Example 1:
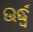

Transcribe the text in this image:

ଊର୍ଦ୍ଧ୍ୱ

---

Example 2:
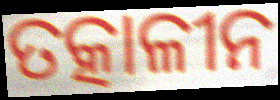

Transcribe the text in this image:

ତତ୍କାଳୀନ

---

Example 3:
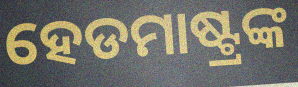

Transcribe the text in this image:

ହେଡମାଷ୍ଟ୍ରଙ୍କ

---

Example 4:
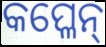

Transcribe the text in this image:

କପ୍ଳେନ୍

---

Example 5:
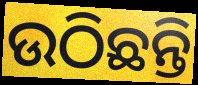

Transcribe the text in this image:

ଉଠିଛନ୍ତି